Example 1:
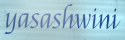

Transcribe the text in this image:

yasashwini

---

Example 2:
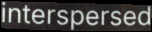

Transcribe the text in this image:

interspersed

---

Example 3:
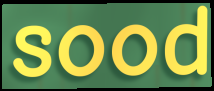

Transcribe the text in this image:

sood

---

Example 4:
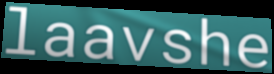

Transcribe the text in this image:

laavshe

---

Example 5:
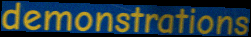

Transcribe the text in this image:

demonstrations